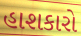
હાશકારો